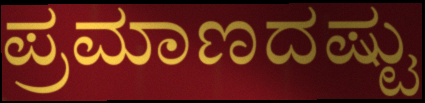
ಪ್ರಮಾಣದಷ್ಟು